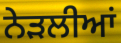
ਨੇੜਲੀਆਂ